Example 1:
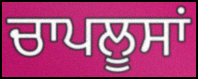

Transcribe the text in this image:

ਚਾਪਲੂਸਾਂ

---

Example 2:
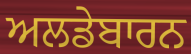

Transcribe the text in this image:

ਅਲਡੇਬਾਰਨ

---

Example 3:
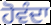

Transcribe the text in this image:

ਹੋਵੰਦਾ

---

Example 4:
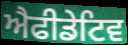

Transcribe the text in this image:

ਐਫੀਡੇਟਿਵ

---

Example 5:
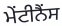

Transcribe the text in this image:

ਮੇਂਟੀਨੈਂਸ